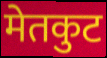
मेतकुट